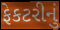
ફેકટરીનું